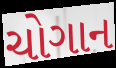
ચોગાન